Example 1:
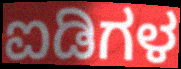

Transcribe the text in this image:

ಐಡಿಗಳ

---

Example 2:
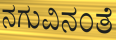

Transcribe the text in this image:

ನಗುವಿನಂತೆ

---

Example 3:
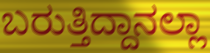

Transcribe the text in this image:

ಬರುತ್ತಿದ್ದಾನಲ್ಲಾ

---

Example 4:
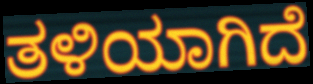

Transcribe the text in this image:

ತಳಿಯಾಗಿದೆ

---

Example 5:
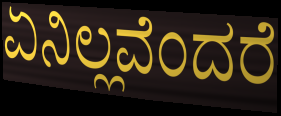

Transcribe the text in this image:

ಏನಿಲ್ಲವೆಂದರೆ